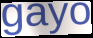
gayo